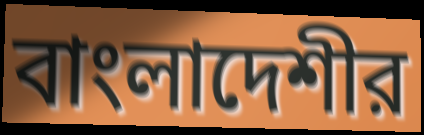
বাংলাদেশীর